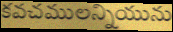
కవచములన్నియును